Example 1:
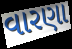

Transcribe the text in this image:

વારણા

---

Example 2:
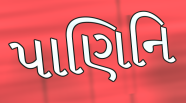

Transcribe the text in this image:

પાણિનિ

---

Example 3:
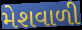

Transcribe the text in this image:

મેશવાળી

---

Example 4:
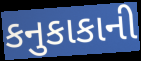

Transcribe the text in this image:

કનુકાકાની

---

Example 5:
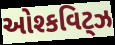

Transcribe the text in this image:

ઓશ્કવિટ્ઝ